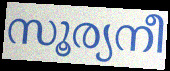
സൂര്യനീ